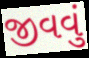
જીવવું